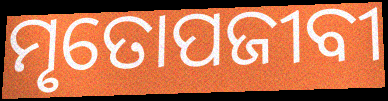
ମୃତୋପଜୀବୀ